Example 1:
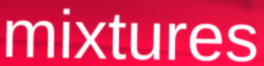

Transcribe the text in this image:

mixtures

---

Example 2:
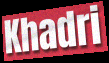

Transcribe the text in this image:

Khadri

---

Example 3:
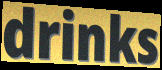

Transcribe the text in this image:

drinks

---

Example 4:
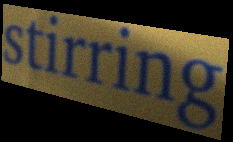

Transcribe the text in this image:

stirring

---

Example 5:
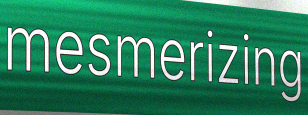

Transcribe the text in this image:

mesmerizing